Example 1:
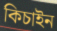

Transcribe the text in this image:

কিচাইন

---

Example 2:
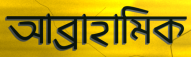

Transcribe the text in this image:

আব্রাহামিক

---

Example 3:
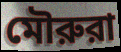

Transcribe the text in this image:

মৌরুরা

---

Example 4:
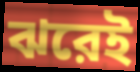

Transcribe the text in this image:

ঝরেই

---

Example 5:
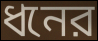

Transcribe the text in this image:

ধনের